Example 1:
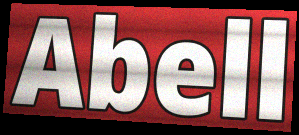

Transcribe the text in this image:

Abell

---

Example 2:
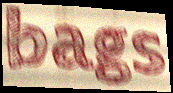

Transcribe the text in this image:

bags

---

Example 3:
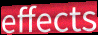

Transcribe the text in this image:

effects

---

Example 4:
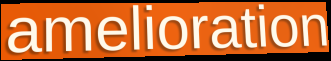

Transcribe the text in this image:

amelioration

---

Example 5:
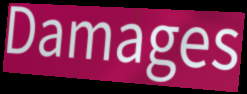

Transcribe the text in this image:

Damages